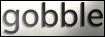
gobble